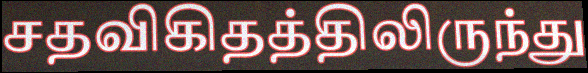
சதவிகிதத்திலிருந்து